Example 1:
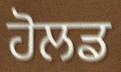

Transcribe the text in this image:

ਹੋਲਡ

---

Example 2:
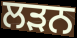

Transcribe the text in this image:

ਲੜਨ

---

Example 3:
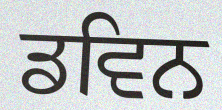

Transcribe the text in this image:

ਡਵਿਨ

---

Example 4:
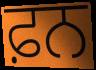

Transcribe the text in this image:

ਫ਼ਨ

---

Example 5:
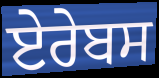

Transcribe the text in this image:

ਏਰੇਬਸ